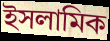
ইসলামিক